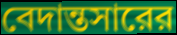
বেদান্তসারের